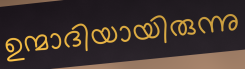
ഉന്മാദിയായിരുന്നു